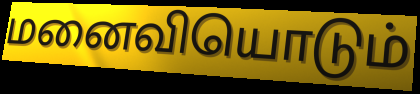
மனைவியொடும்